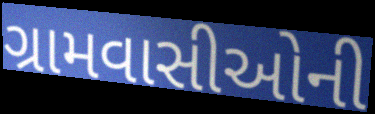
ગ્રામવાસીઓની